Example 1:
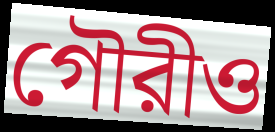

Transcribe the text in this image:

গৌরীও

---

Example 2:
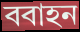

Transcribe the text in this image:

ববাহন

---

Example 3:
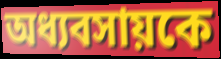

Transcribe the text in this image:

অধ্যবসায়কে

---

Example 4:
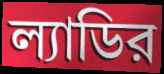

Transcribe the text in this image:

ল্যাডির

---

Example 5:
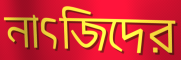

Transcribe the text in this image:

নাৎজিদের